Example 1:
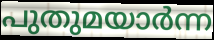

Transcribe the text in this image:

പുതുമയാർന്ന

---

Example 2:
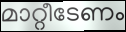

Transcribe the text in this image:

മാറ്റീടേണം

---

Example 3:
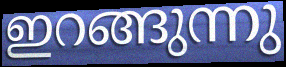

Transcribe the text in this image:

ഇറങ്ങുന്നു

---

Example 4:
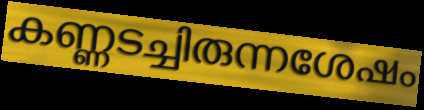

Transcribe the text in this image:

കണ്ണടച്ചിരുന്നശേഷം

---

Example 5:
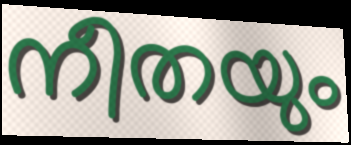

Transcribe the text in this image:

നീതയും